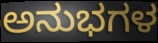
ಅನುಭಗಳ